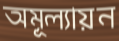
অমূল্যায়ন